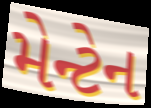
મેન્ટેન